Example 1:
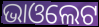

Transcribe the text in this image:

ଭାଓଲେଟ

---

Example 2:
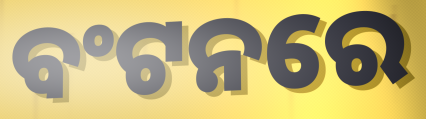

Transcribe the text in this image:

ବଂଟନରେ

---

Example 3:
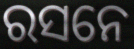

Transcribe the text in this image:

ରସନେ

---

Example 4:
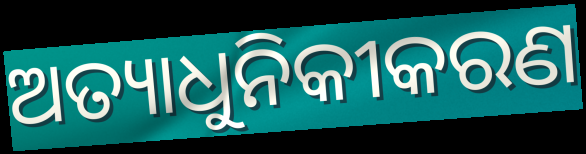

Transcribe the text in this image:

ଅତ୍ୟାଧୁନିକୀକରଣ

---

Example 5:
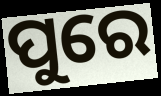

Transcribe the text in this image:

ପୁରେ